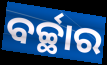
ବର୍ଚ୍ଛାର